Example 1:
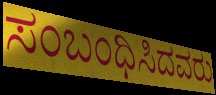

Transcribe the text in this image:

ಸಂಬಂಧಿಸಿದವರು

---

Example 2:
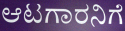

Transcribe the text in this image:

ಆಟಗಾರನಿಗೆ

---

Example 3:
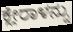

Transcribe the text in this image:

ಕ್ಲೇರಾಳನ್ನು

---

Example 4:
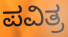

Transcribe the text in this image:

ಪವಿತ್ರ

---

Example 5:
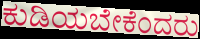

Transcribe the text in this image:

ಕುಡಿಯಬೇಕೆಂದರು